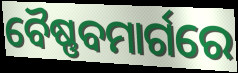
ବୈଷ୍ଣବମାର୍ଗରେ